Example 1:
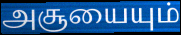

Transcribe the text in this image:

அசூயையும்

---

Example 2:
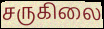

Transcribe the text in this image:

சருகிலை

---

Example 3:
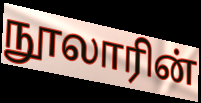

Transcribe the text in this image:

நூலாரின்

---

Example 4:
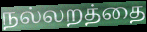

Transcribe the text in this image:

நல்லறத்தை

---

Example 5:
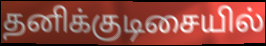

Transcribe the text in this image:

தனிக்குடிசையில்